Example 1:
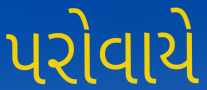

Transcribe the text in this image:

પરોવાયે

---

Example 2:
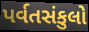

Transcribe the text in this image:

પર્વતસંકુલો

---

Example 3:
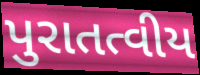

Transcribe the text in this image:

પુરાતત્વીય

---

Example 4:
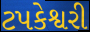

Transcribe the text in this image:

ટપકેશ્વરી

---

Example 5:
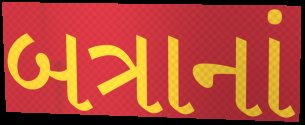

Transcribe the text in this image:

બત્રાનાં